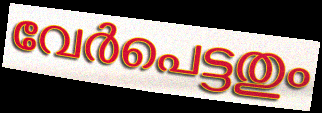
വേർപെട്ടതും